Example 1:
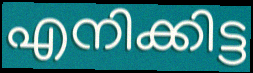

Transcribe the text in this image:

എനിക്കിട്ട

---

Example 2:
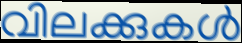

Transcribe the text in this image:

വിലക്കുകൾ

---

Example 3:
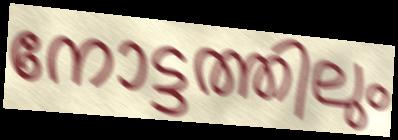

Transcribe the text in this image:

നോട്ടത്തിലും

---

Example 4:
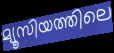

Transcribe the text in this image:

മ്യൂസിയത്തിലെ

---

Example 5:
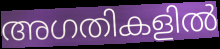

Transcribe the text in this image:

അഗതികളിൽ